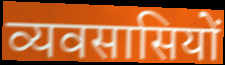
व्यवसासियों